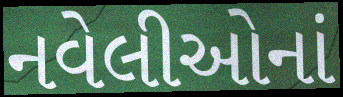
નવેલીઓનાં